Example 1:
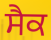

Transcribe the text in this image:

ਸੈਕ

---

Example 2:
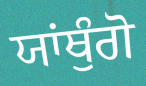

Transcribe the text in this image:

ਯਾਂਥੁੰਗੋ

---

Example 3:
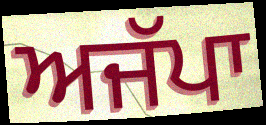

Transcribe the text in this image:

ਅਜੱਪਾ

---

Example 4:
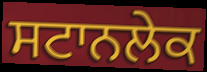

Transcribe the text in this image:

ਸਟਾਨਲੇਕ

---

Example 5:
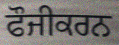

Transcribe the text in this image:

ਫੌਜੀਕਰਨ